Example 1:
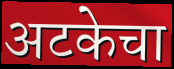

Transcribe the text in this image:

अटकेचा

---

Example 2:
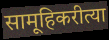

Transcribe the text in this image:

सामूहिकरीत्या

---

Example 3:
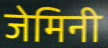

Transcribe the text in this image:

जेमिनी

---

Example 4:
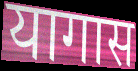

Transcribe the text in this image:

यागास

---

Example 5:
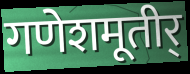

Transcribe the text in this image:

गणेशमूतीर्